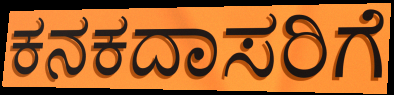
ಕನಕದಾಸರಿಗೆ